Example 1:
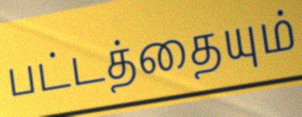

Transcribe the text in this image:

பட்டத்தையும்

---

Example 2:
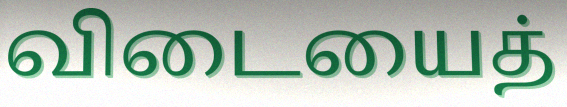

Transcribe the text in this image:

விடையைத்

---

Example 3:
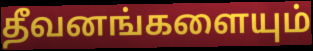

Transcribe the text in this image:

தீவனங்களையும்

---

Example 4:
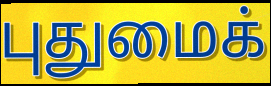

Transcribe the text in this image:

புதுமைக்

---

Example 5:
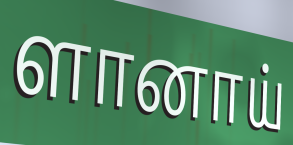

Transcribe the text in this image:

ளானாய்